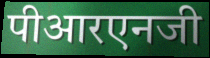
पीआरएनजी